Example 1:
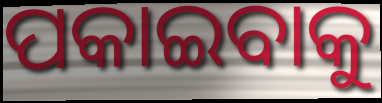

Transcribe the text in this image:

ପକାଇବାକୁ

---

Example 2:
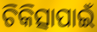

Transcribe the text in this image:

ଚିକିତ୍ସାପାଇଁ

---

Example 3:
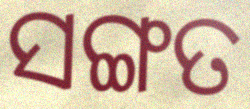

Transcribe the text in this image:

ସଙ୍ଗତ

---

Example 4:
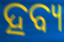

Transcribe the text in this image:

ହବ୍ୟ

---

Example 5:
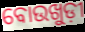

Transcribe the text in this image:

ବୋଉଖୁଡ଼ୀ